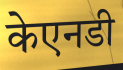
केएनडी